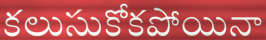
కలుసుకోకపోయినా